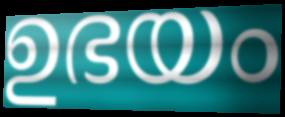
ഉഭയം